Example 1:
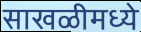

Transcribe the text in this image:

साखळीमध्ये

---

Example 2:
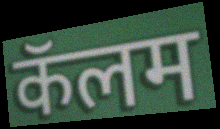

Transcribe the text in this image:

कॅलम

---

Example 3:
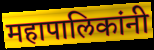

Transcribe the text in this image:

महापालिकांनी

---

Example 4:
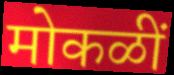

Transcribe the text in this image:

मोकळीं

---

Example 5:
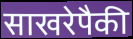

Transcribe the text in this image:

साखरेपैकी